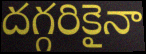
దగ్గరికైనా